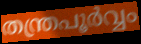
തന്ത്രപൂർവ്വം